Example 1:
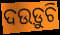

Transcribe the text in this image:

ଦଉଡ଼ୁଚି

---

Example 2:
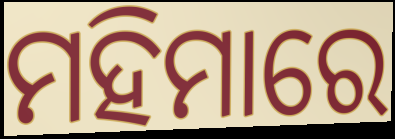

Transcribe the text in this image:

ମହିମାରେ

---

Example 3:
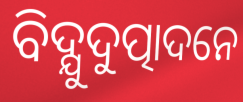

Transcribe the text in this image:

ବିଦ୍ଯୁଦୁତ୍ପାଦନେ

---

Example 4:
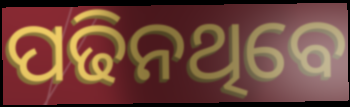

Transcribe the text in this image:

ପଢିନଥିବେ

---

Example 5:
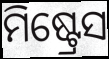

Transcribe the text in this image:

ମିଷ୍ଟ୍ରେସ